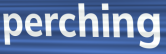
perching